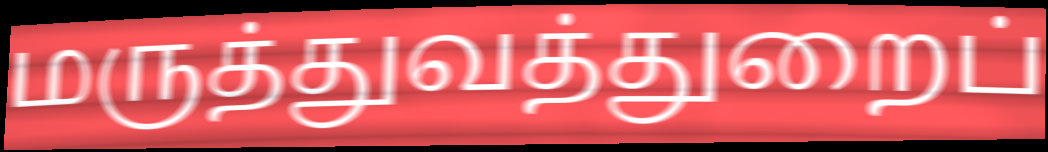
மருத்துவத்துறைப்